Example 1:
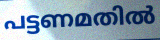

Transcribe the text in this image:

പട്ടണമതിൽ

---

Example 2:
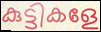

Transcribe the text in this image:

കുട്ടികളേ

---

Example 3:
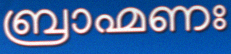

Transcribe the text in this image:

ബ്രാഹ്മണഃ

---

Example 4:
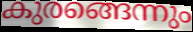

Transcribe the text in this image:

കുരങ്ങെന്നും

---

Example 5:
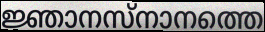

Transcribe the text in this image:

ജ്ഞാനസ്നാനത്തെ